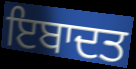
ਇਬਾਦਤ